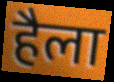
हैला